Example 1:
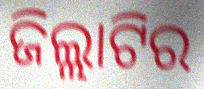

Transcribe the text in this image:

ଜିଲ୍ଲାଟିର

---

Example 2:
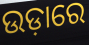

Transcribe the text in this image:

ଉଡ଼ାରେ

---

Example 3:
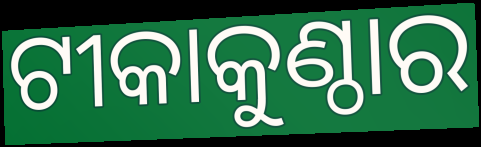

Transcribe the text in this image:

ଟୀକାକୁଣ୍ଠାର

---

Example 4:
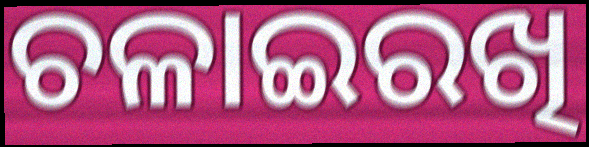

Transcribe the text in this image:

ଚଳାଇରଖି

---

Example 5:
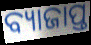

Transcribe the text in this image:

ବ୍ୟାଜାପ୍ତ